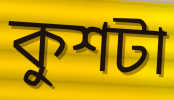
কুশটা